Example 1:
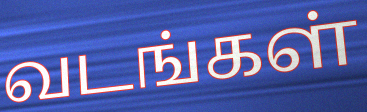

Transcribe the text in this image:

வடங்கள்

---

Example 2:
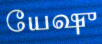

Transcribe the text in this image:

யேஷு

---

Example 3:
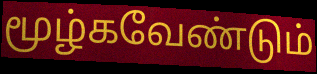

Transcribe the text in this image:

மூழ்கவேண்டும்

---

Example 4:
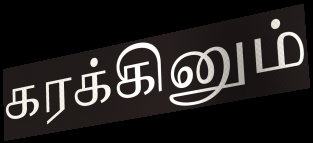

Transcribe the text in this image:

கரக்கினும்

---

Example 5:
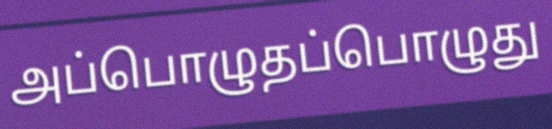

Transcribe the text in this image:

அப்பொழுதப்பொழுது